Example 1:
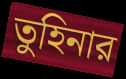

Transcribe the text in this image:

তুহিনার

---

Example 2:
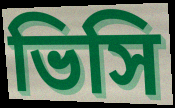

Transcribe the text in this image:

ভিসি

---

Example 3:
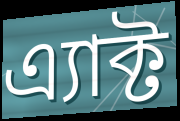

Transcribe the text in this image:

এ্যাক্ট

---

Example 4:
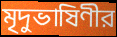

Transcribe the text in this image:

মৃদুভাষিণীর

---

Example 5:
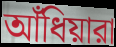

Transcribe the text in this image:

আঁধিয়ারা